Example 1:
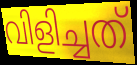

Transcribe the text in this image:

വിളിച്ചത്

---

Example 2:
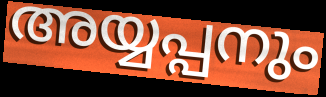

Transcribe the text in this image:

അയ്യപ്പനും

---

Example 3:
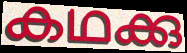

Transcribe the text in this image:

കഥക്കു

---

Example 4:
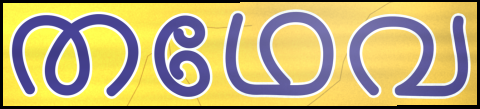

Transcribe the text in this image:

തഥേവ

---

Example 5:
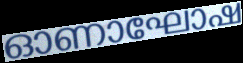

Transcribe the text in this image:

ഓണാഘോഷ